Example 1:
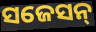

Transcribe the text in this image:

ସଜେସନ୍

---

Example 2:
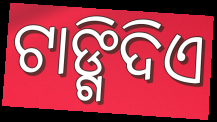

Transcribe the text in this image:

ଟାଙ୍ଗିଦିଏ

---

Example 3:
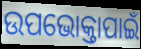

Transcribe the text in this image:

ଉପଭୋକ୍ତାପାଇଁ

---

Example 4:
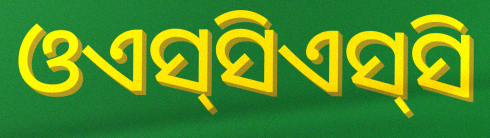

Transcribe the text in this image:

ଓଏସ୍‌ସିଏସ୍‌ସି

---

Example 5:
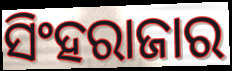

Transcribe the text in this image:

ସିଂହରାଜାର